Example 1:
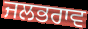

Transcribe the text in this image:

ਜਲਭਰਾਵ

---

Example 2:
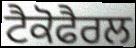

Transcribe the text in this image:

ਟੈਕੋਫੈਰਲ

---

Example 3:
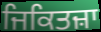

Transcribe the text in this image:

ਜਿਕਿਤਜ਼ਾ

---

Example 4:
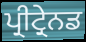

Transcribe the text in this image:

ਪ੍ਰੀਟ੍ਰੇਨਡ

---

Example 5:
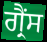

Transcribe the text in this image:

ਗ੍ਰੈਂਸ